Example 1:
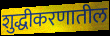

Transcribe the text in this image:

शुद्धीकरणातील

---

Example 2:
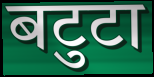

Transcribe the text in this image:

बटुटा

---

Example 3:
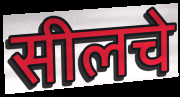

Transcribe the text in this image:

सीलचे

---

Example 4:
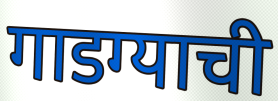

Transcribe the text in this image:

गाडग्याची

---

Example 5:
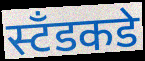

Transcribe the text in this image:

स्टॅंडकडे